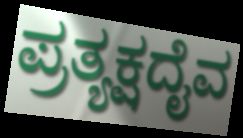
ಪ್ರತ್ಯಕ್ಷದೈವ